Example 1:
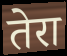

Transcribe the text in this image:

तेरा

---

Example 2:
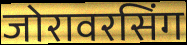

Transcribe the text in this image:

जोरावरसिंग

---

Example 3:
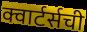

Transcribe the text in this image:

क्वार्टर्सची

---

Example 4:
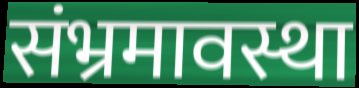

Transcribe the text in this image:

संभ्रमावस्था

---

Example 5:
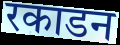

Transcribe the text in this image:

रकाडन